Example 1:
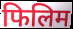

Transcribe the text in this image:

फिलिम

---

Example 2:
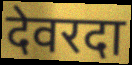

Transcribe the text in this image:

देवरदा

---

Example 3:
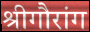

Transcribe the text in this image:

श्रीगौरांग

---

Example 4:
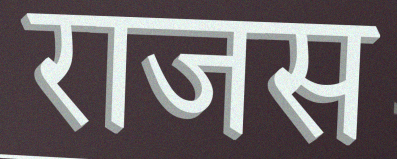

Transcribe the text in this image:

राजस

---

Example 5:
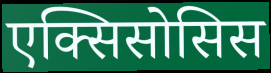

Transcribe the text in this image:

एक्सिसोसिस